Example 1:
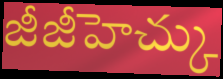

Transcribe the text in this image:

జీజీహెచ్కు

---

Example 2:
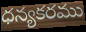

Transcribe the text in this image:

ధన్యకరము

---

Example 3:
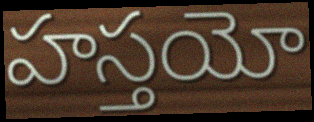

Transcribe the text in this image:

హస్తయో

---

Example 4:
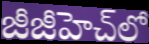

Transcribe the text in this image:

జీజీహెచ్‌లో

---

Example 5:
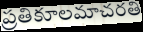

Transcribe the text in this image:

ప్రతికూలమాచరతి